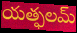
యత్ఫలమ్